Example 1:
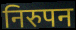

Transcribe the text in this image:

निरुपन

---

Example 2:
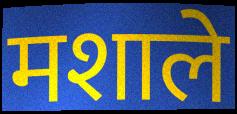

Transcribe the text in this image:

मशाले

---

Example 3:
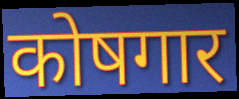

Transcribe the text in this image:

कोषगार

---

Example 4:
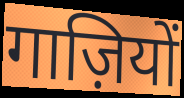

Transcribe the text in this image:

गाज़ियों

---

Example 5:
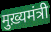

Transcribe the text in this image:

मुख़्यमंत्री